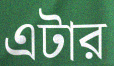
এটার